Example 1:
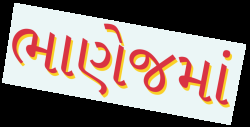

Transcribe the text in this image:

ભાણેજમાં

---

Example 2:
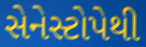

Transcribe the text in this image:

સેનેસ્ટોપેથી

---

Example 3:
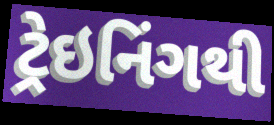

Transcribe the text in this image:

ટ્રેઇનિંગથી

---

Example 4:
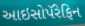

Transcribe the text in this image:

આઇસોપૅરેફિન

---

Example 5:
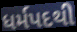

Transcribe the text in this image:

ધર્મપદથી